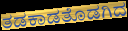
ತಡಕಾಡತೊಡಗಿದ